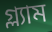
গ্ল্যাম